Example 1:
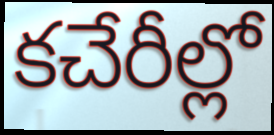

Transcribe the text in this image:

కచేరీల్లో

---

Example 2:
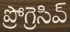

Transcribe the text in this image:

ప్రోగ్రెసివ్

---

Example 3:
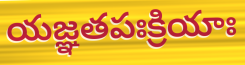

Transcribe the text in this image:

యజ్ఞతపఃక్రియాః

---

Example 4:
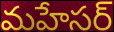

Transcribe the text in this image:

మహేసర్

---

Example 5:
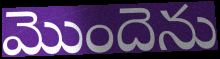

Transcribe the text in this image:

మొందెను